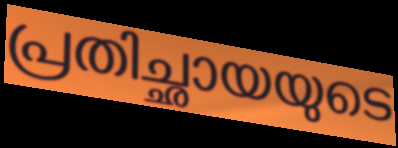
പ്രതിച്ഛായയുടെ